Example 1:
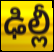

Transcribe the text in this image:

ఢిల్లీ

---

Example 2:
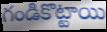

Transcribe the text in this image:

గండికొట్టాయి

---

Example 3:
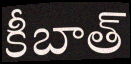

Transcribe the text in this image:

కీబాత్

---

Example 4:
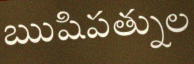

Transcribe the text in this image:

ఋషిపత్నుల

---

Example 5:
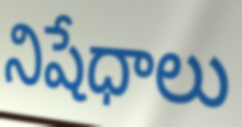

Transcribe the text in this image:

నిషేధాలు